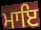
ਮਾਇ